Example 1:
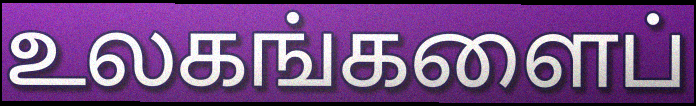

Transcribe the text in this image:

உலகங்களைப்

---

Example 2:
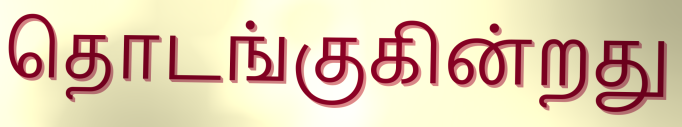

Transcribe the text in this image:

தொடங்குகின்றது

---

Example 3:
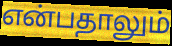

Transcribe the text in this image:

என்பதாலும்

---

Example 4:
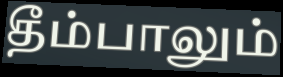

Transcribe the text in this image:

தீம்பாலும்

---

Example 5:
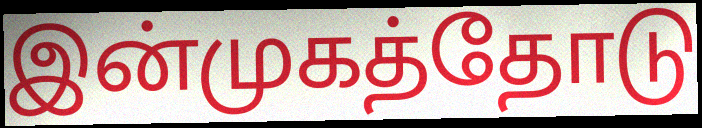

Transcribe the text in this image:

இன்முகத்தோடு